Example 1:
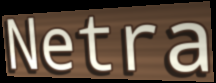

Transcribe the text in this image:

Netra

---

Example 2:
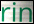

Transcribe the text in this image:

rin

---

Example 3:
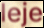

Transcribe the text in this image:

leje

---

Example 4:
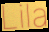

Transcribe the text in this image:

Lila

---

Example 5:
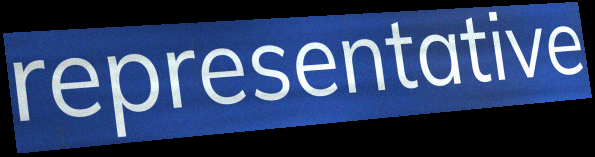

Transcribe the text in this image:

representative